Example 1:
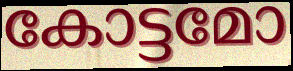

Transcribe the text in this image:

കോട്ടമോ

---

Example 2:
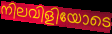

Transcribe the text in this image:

നിലവിളിയോടെ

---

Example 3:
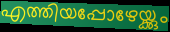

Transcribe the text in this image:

എത്തിയപ്പോഴേയ്ക്കും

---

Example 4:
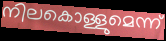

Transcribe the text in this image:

നിലകൊള്ളുമെന്ന്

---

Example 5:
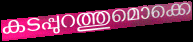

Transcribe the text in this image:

കടപ്പുറത്തുമൊക്കെ